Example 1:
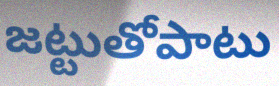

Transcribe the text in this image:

జట్టుతోపాటు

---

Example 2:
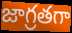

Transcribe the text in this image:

జాగ్రతగా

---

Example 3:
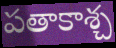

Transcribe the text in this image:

పతాకాశ్చ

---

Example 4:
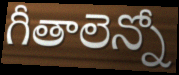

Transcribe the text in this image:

గీతాలెన్నో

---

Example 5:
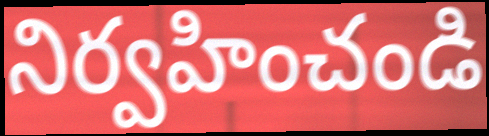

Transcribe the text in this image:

నిర్వహించండి